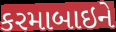
કરમાબાઇને